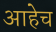
आहेच